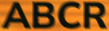
ABCR